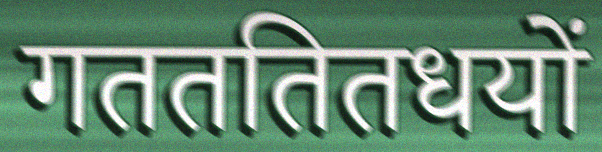
गतततितधयों